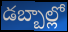
డబ్బాల్లో